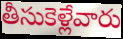
తీసుకెళ్లేవారు